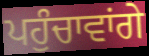
ਪਹੁੰਚਾਵਾਂਗੇ